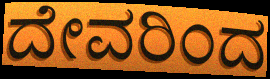
ದೇವರಿಂದ